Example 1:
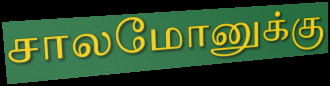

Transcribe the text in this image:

சாலமோனுக்கு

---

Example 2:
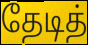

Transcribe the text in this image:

தேடித்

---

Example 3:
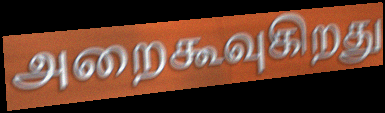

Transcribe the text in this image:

அறைகூவுகிறது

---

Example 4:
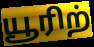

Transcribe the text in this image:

யூரிற்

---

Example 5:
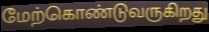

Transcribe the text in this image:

மேற்கொண்டுவருகிறது